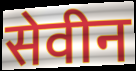
सेवीन